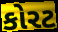
કોરટ